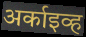
अर्काइव्ह